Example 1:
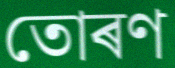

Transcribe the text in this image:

তোৰণ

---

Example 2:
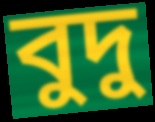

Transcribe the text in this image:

বুদু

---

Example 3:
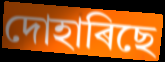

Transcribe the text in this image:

দোহাৰিছে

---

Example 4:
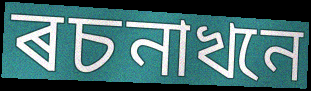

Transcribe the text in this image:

ৰচনাখনে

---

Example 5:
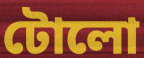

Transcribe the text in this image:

টোলো